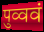
पुव्ववं